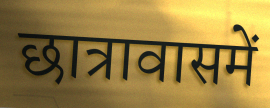
छात्रावासमें